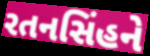
રતનસિંહને